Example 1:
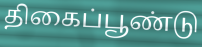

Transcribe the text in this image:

திகைப்பூண்டு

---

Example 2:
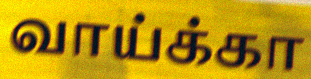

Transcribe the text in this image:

வாய்க்கா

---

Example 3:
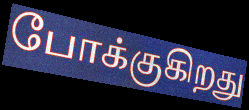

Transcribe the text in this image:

போக்குகிறது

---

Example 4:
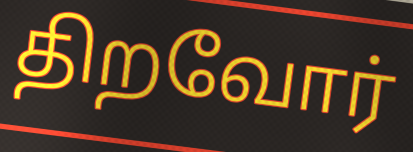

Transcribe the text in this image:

திறவோர்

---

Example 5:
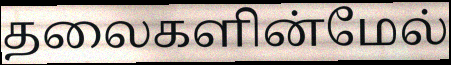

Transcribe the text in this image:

தலைகளின்மேல்